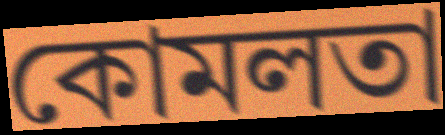
কোমলতা